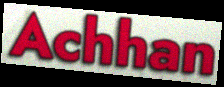
Achhan